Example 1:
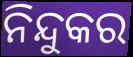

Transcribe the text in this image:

ନିନ୍ଦୁକର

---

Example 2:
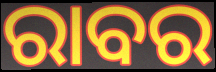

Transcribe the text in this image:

ରାବର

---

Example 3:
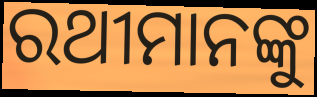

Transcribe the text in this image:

ରଥୀମାନଙ୍କୁ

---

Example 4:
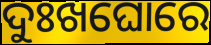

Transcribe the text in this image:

ଦୁଃଖଘୋରେ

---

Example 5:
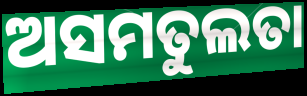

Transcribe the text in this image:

ଅସମତୁଲତା